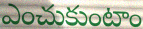
ఎంచుకుంటాం